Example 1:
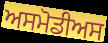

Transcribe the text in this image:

ਅਸਮੋਡੀਅਸ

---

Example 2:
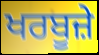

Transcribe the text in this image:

ਖਰਬੂਜ਼ੇ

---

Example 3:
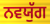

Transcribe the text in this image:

ਨਵਯੁੱਗ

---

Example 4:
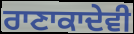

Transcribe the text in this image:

ਰਾਣਾਕਾਦੇਵੀ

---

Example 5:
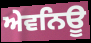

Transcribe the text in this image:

ਅੇਵਨਿਊ